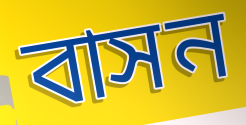
বাসন